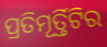
ପ୍ରତିମୂର୍ତ୍ତିଟିର